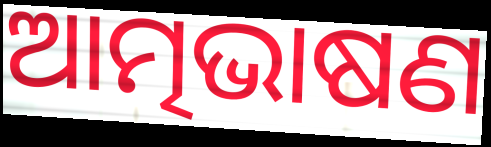
ଆତ୍ମଭାଷଣ